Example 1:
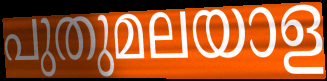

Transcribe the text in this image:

പുതുമലയാള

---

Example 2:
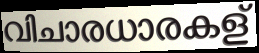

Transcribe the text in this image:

വിചാരധാരകള്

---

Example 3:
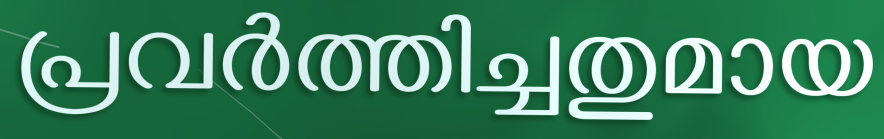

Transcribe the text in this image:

പ്രവർത്തിച്ചതുമായ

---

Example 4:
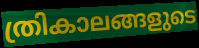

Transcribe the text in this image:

ത്രികാലങ്ങളുടെ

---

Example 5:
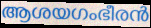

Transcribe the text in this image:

ആശയഗംഭീരൻ